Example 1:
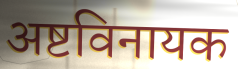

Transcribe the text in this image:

अष्टविनायक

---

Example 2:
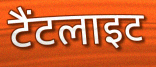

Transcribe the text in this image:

टैंटलाइट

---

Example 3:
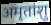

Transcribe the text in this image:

अमृतांशु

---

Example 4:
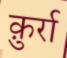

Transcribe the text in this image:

क़ुर्रा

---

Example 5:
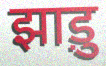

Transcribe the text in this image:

झाड़ु